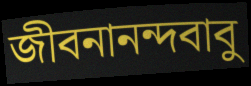
জীবনানন্দবাবু